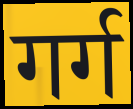
गर्ग